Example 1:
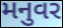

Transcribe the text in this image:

મનુવર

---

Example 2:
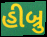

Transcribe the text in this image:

હીબ્રુ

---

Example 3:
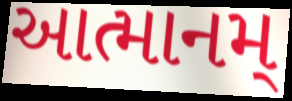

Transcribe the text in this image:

આત્માનમ્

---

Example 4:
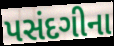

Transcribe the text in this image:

પસંદગીના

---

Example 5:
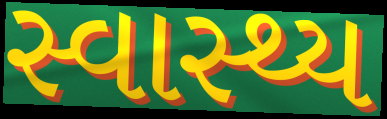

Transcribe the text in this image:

સ્વાસ્થ્ય